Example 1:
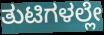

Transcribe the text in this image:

ತುಟಿಗಳಲ್ಲೇ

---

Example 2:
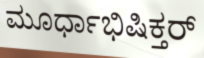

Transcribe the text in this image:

ಮೂರ್ಧಾಭಿಷಿಕ್ತರ್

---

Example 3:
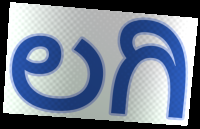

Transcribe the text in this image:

ಲಗಿ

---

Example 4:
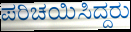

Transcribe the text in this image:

ಪರಿಚಯಿಸಿದ್ದರು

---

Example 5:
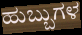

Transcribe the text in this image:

ಹುಬ್ಬುಗಳ